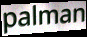
palman